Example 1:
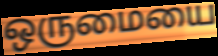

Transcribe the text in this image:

ஒருமையை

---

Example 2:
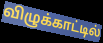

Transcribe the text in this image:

விழுக்காட்டில்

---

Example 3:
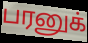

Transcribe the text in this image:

பரனுக்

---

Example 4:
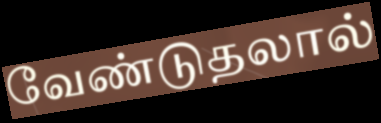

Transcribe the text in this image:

வேண்டுதலால்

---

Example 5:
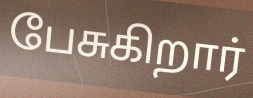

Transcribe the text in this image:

பேசுகிறார்